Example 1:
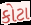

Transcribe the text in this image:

કોટા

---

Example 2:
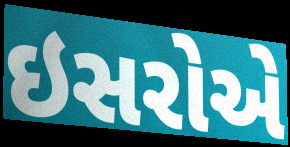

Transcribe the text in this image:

ઇસરોએ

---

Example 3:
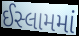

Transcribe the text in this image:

ઈસ્લામમાં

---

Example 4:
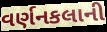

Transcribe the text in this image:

વર્ણનકલાની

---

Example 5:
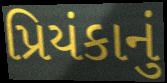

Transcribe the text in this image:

પ્રિયંકાનું